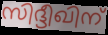
സിദ്ദീഖിന്